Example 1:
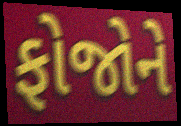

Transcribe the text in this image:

ફોજોને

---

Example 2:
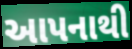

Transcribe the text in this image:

આપનાથી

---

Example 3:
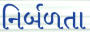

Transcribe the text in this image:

નિર્બળતા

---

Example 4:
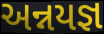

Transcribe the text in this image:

અન્નયજ્ઞ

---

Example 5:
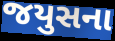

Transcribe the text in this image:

જયુસના